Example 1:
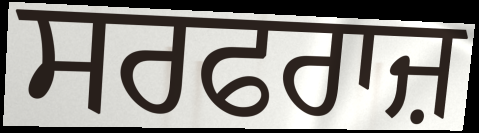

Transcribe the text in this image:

ਸਰਫਰਾਜ਼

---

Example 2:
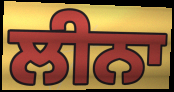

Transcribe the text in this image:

ਲੀਨਾ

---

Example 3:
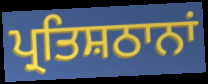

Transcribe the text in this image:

ਪ੍ਰਤਿਸ਼ਠਾਨਾਂ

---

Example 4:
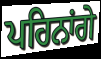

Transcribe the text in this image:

ਪਹਿਨਾਂਗੇ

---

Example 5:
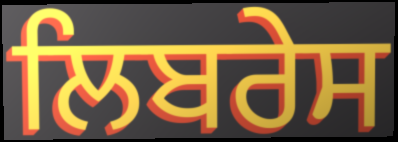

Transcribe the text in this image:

ਲਿਬਰੇਸ